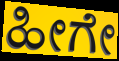
ಹೀಗೇ